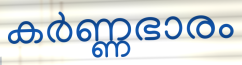
കർണ്ണഭാരം